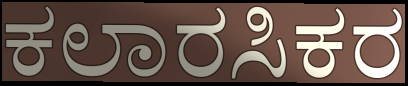
ಕಲಾರಸಿಕರ